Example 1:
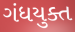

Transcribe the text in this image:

ગંધયુક્ત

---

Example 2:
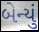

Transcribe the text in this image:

બેન્યું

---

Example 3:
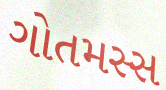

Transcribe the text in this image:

ગોતમસ્સ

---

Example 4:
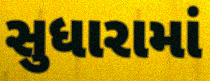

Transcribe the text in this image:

સુધારામાં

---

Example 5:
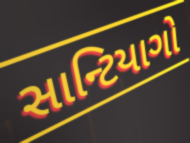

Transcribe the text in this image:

સાન્ટિયાગો